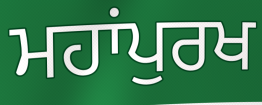
ਮਹਾਂਪੁਰਖ